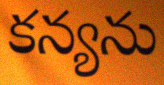
కన్యను